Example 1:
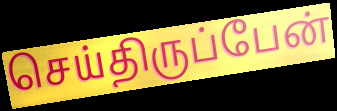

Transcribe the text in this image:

செய்திருப்பேன்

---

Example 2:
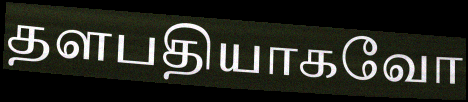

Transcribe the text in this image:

தளபதியாகவோ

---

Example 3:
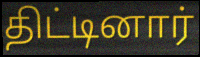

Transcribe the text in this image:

திட்டினார்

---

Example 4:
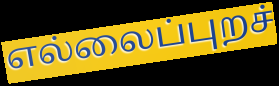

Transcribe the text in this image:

எல்லைப்புறச்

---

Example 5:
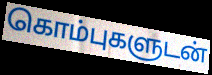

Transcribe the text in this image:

கொம்புகளுடன்